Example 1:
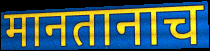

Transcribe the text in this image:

मानतानाच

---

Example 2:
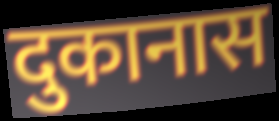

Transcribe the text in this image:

दुकानास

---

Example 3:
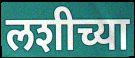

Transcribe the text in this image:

लशीच्या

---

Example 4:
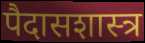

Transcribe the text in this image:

पैदासशास्त्र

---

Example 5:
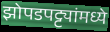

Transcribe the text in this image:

झोपडपट्ट्यांमध्ये